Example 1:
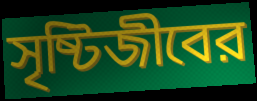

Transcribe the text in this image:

সৃষ্টিজীবের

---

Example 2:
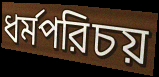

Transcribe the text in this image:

ধর্মপরিচয়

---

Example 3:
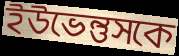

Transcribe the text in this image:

ইউভেন্তুসকে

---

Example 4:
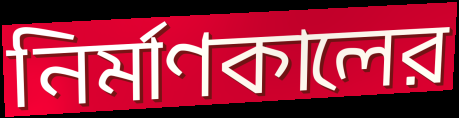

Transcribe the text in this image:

নির্মাণকালের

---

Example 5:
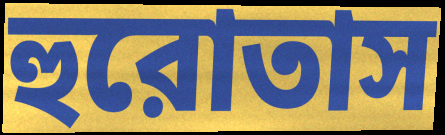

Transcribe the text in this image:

হুরোতাস